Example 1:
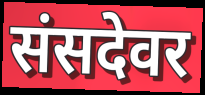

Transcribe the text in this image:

संसदेवर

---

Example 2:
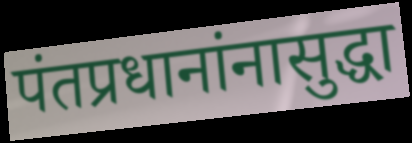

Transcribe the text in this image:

पंतप्रधानांनासुद्धा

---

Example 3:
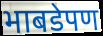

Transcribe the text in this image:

भाबडेपण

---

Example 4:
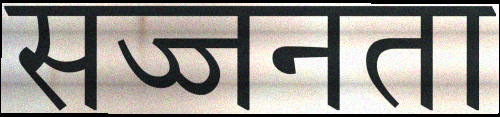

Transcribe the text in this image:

सज्जनता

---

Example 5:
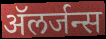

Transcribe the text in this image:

ॲलर्जन्स